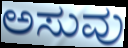
ಅಸುವು